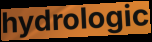
hydrologic